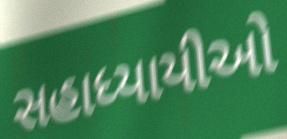
સહાધ્યાયીઓ